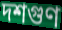
দশগুণ